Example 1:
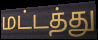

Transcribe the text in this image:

மட்டத்து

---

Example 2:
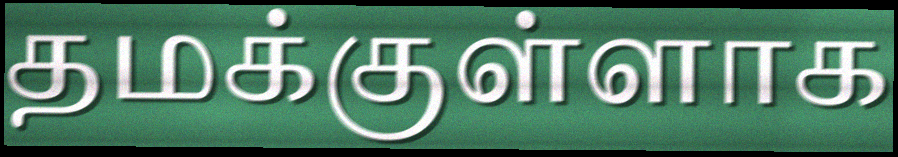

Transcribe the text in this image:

தமக்குள்ளாக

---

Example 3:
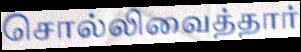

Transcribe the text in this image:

சொல்லிவைத்தார்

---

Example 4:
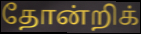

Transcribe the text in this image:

தோன்றிக்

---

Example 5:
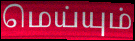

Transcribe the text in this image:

மெய்யும்